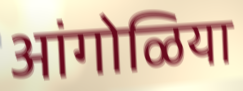
आंगोळिया